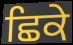
ਛਿਕੇ